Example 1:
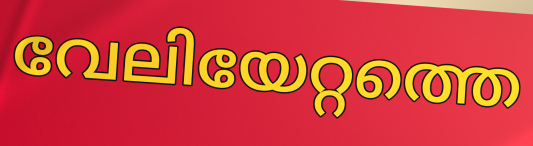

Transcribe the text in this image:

വേലിയേറ്റത്തെ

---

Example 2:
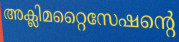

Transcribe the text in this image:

അക്ലിമറ്റൈസേഷന്റെ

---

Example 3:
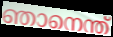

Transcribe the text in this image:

ഞാനെന്ത്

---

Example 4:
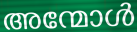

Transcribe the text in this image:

അന്മോൾ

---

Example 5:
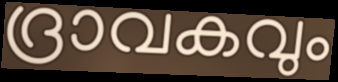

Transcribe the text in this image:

ദ്രാവകവും